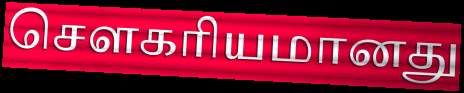
சௌகரியமானது